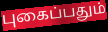
புகைப்பதும்